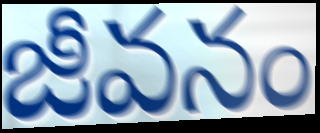
జీవనం